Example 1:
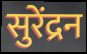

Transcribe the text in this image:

सुरेंद्रन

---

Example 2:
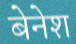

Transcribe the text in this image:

बेनेश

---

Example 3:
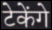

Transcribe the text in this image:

टेकेंगे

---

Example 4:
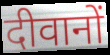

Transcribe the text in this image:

दीवानों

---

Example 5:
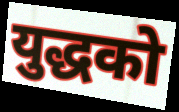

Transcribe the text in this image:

युद्धको